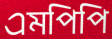
এমপিপি